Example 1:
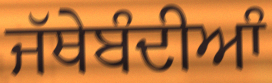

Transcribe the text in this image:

ਜੱਥੇਬੰਦੀਆੰ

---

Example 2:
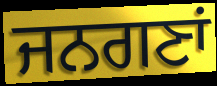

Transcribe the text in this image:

ਜਨਗਣਾਂ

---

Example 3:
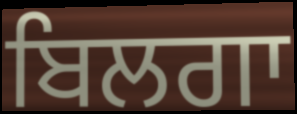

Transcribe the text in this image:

ਬਿਲਗਾ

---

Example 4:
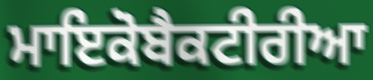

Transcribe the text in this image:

ਮਾਇਕੋਬੈਕਟੀਰੀਆ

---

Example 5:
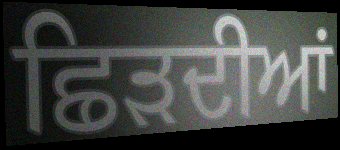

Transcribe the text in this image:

ਛਿੜਦੀਆਂ